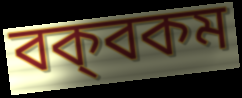
বক্‌বকম